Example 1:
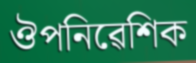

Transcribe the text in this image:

ঔপনিৱেশিক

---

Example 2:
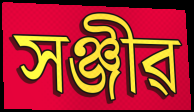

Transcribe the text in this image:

সঞ্জীৱ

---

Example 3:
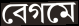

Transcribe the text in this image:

বেগমে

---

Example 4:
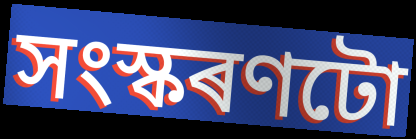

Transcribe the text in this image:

সংস্কৰণটো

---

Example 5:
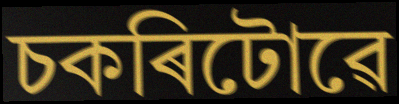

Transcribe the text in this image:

চকৰিটোৱে